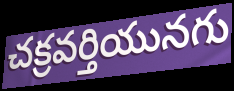
చక్రవర్తియునగు